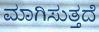
ಮಾಗಿಸುತ್ತದೆ